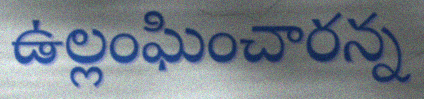
ఉల్లంఘించారన్న